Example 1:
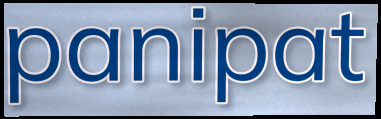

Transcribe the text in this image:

panipat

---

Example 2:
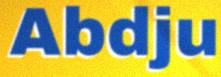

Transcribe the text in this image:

Abdju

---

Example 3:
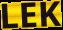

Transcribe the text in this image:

LEK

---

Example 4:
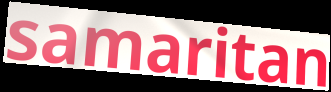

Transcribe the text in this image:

samaritan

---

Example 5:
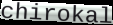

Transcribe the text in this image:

chirokal